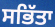
ਸਭਿੱਤਾ